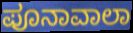
ಪೂನಾವಾಲಾ